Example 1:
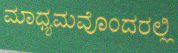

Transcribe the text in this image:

ಮಾಧ್ಯಮವೊಂದರಲ್ಲಿ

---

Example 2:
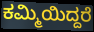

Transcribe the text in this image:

ಕಮ್ಮಿಯಿದ್ದರೆ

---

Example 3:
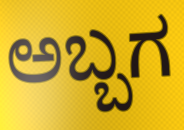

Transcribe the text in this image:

ಅಬ್ಬಗ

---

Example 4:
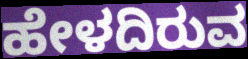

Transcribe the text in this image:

ಹೇಳದಿರುವ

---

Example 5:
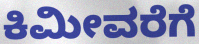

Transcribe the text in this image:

ಕಿಮೀವರೆಗೆ